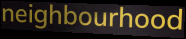
neighbourhood